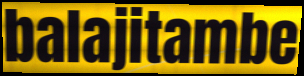
balajitambe